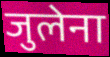
जुलेना